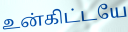
உன்கிட்டயே